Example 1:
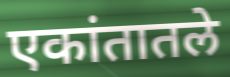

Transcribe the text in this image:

एकांतातले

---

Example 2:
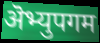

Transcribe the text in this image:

ऄभ्युपगम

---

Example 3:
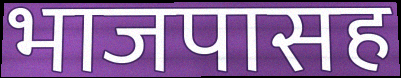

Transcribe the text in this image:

भाजपासह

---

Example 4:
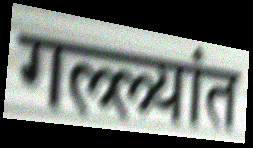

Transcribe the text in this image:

गल्ल्यांत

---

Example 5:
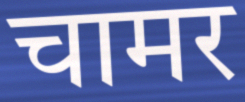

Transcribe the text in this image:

चामर